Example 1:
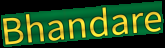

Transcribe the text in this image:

Bhandare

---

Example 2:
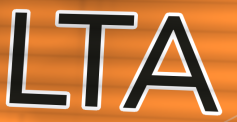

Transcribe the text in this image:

LTA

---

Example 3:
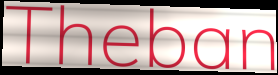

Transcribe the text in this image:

Theban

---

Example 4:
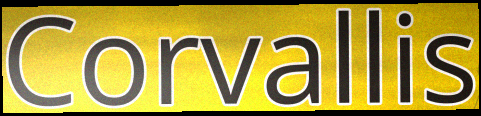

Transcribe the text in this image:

Corvallis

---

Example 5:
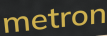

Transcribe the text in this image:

metron